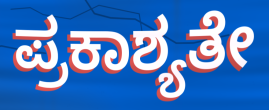
ಪ್ರಕಾಶ್ಯತೇ